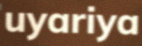
uyariya